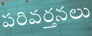
పరివర్తనలు